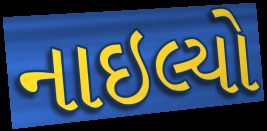
નાઇલ્યો